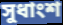
সুধাংশ